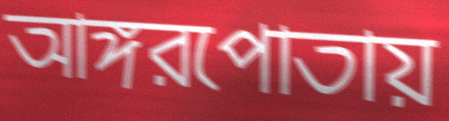
আঙ্গরপোতায়